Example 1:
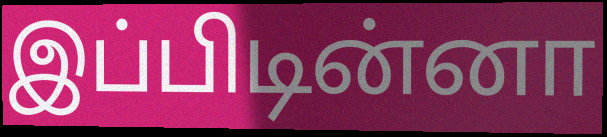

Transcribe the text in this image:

இப்பிடின்னா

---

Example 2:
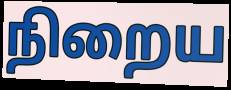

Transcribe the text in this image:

நிறைய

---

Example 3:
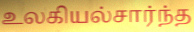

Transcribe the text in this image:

உலகியல்சார்ந்த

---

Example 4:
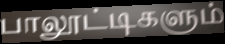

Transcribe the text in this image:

பாலூட்டிகளும்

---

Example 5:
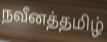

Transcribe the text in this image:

நவீனத்தமிழ்